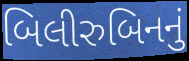
બિલીરુબિનનું